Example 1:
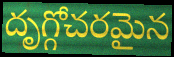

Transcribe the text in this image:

దృగ్గోచరమైన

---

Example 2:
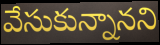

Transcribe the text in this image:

వేసుకున్నానని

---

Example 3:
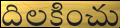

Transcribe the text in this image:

దిలకించు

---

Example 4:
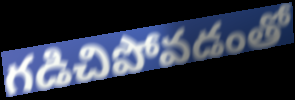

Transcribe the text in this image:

గడిచిపోవడంతో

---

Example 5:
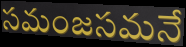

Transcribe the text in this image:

సమంజసమనే